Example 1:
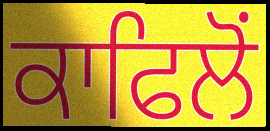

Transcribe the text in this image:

ਕਾਫਿਲੋਂ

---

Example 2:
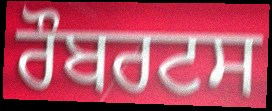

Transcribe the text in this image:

ਰੌਬਰਟਸ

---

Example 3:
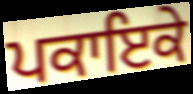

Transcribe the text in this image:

ਪਕਾਇਕੇ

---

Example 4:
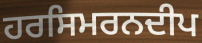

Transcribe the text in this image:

ਹਰਸਿਮਰਨਦੀਪ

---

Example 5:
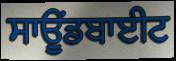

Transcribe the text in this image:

ਸਾਊਂਡਬਾਈਟ